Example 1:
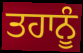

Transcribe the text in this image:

ਤਹਾਨੂੰ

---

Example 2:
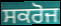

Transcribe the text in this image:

ਸਕਰੋਜ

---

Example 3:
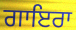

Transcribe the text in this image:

ਗਾਇਰਾ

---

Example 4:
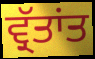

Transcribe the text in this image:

ਵ੍ਰੱਤਾਂਤ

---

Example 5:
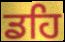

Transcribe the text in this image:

ਡਹਿ